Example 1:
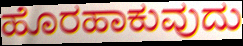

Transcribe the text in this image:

ಹೊರಹಾಕುವುದು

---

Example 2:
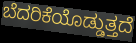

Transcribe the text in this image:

ಬೆದರಿಕೆಯೊಡ್ಡುತ್ತದೆ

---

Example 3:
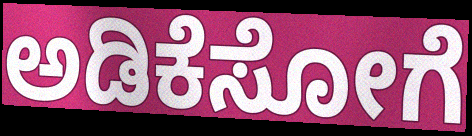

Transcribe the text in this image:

ಅಡಿಕೆಸೋಗೆ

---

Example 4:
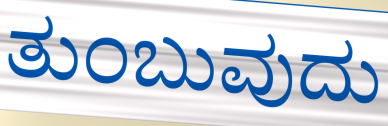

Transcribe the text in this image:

ತುಂಬುವುದು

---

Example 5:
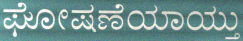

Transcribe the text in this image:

ಘೋಷಣೆಯಾಯ್ತು